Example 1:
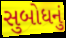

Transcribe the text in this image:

સુબોધનું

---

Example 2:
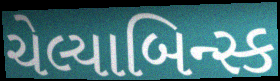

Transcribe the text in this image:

ચેલ્યાબિન્સ્ક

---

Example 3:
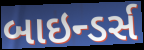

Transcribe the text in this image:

બાઇન્ડર્સ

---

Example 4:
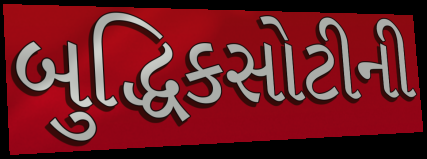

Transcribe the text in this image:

બુદ્ધિકસોટીની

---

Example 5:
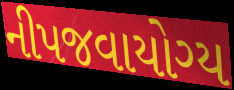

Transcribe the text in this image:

નીપજવાયોગ્ય